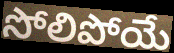
సోలిపోయే